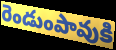
రెండుంపావుకి